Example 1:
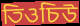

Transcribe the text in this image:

তিওচিউ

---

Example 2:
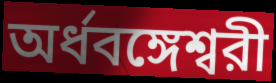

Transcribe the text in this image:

অর্ধবঙ্গেশ্বরী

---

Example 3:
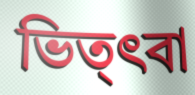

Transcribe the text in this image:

ভিত্ৎবা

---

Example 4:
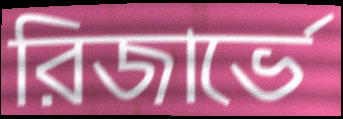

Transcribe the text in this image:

রিজার্ভে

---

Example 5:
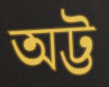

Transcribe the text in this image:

অট্ট